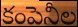
కంపెనీల